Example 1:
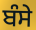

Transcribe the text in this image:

ਬੰਸੇ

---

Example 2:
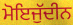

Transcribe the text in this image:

ਮੋਇਜੁੱਦੀਨ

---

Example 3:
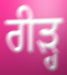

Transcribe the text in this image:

ਰੀੜ੍ਹ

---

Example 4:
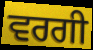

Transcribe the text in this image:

ਵਰਗੀ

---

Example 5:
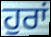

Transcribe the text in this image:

ਹੁਰਾਂ